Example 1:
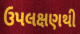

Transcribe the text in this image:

ઉપલક્ષણથી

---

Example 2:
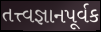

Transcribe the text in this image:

તત્ત્વજ્ઞાનપૂર્વક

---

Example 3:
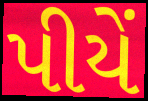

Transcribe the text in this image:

પીયેં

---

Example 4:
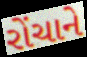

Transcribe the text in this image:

રોંચાને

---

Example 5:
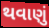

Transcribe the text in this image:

થવાણું